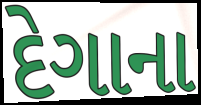
દેગાના